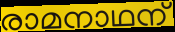
രാമനാഥന്